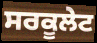
ਸਰਕੂਲੇਟ